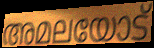
അമലയോട്